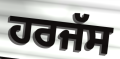
ਹਰਜੱਸ